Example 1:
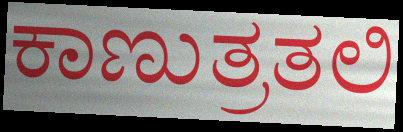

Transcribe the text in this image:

ಕಾಣುತ್ರತಲಿ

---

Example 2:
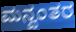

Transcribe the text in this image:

ಮನ್ವಂತರ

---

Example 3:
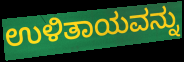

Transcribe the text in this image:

ಉಳಿತಾಯವನ್ನು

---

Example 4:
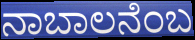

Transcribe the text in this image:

ನಾಬಾಲನೆಂಬ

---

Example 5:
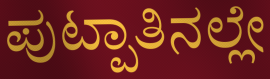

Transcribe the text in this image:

ಪುಟ್ಪಾತಿನಲ್ಲೇ